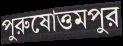
পুরুষোত্তমপুর